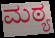
ಮಠ್ಯ